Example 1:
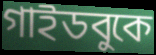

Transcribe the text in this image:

গাইডবুকে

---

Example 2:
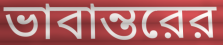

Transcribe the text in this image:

ভাবান্তরের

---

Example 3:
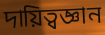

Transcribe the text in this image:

দায়িত্বজ্ঞান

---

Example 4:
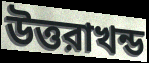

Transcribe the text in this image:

উত্তরাখন্ড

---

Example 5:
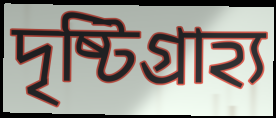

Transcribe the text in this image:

দৃষ্টিগ্রাহ্য